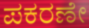
ಪಕರಣೇ